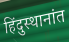
हिंदुस्थानांत